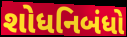
શોધનિબંધો